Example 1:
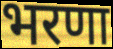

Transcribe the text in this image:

भरणा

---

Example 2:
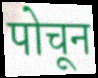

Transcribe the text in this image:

पोचून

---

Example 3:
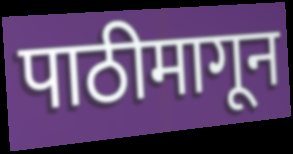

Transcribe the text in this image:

पाठीमागून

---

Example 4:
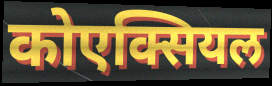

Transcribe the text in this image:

कोएक्सियल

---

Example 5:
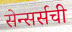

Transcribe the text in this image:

सेन्सर्सची